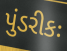
પુંડરીકઃ